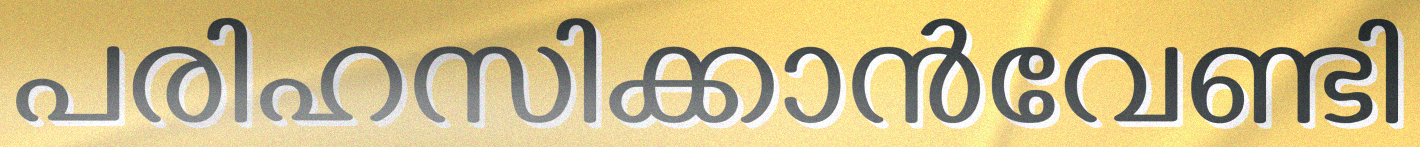
പരിഹസിക്കാൻവേണ്ടി